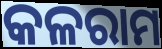
କଳରାମ